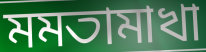
মমতামাখা